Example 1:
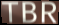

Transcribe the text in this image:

TBR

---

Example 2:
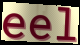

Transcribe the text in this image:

eel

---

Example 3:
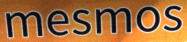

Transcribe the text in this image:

mesmos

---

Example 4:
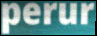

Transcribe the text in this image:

perur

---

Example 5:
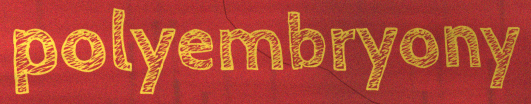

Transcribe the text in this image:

polyembryony